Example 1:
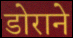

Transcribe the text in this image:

डोराने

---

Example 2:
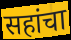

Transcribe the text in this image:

सहांचा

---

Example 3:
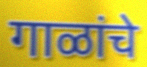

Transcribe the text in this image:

गाळांचे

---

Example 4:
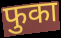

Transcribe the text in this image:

फुका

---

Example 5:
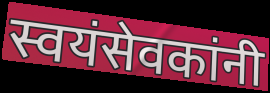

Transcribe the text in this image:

स्वयंसेवकांनी